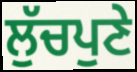
ਲੁੱਚਪੁਣੇ